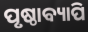
ପୃଷ୍ଠାବ୍ୟାପି